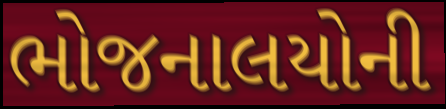
ભોજનાલયોની